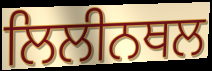
ਲਿਲੀਨਥਲ